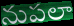
నుపలా